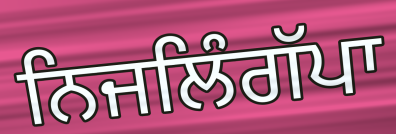
ਨਿਜਲਿੰਗੱਪਾ